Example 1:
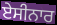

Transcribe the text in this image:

ਏਸੀਨਾਰ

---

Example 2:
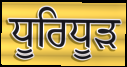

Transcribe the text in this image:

ਧੂਰਿਧੂੜ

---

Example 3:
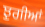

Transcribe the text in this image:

ਝੁਗੀਆਂ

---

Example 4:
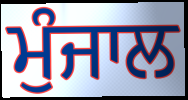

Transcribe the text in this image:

ਮੁੰਜਾਲ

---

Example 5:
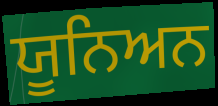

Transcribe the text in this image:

ਯੂਨਿਅਨ